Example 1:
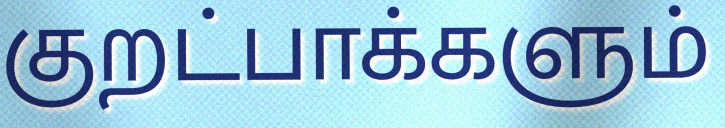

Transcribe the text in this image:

குறட்பாக்களும்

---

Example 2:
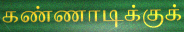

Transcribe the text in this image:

கண்ணாடிக்குக்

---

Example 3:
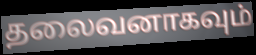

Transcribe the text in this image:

தலைவனாகவும்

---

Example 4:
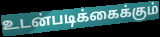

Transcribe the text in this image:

உடன்படிக்கைக்கும்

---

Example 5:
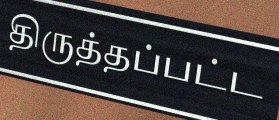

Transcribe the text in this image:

திருத்தப்பட்ட